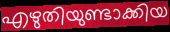
എഴുതിയുണ്ടാക്കിയ